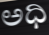
ಅಧಿ